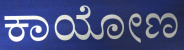
ಕಾಯೋಣ